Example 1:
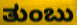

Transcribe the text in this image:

ತುಂಬು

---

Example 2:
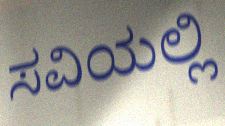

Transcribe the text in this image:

ಸವಿಯಲ್ಲಿ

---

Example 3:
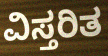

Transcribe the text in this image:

ವಿಸ್ತರಿತ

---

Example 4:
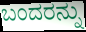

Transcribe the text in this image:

ಬಂದರನ್ನು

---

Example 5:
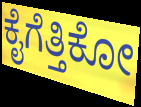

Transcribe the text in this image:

ಕೈಗೆತ್ತಿಕೋ